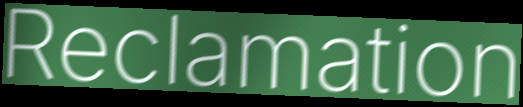
Reclamation